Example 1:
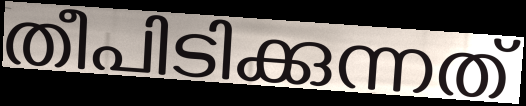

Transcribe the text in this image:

തീപിടിക്കുന്നത്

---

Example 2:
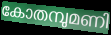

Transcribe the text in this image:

കോതമ്പുമണി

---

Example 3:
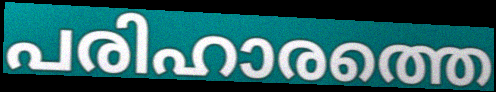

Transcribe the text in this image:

പരിഹാരത്തെ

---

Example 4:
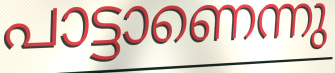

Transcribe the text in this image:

പാട്ടാണെന്നു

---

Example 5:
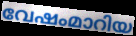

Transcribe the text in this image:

വേഷംമാറിയ